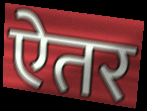
ऐतर